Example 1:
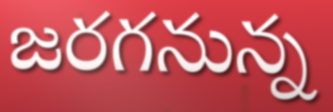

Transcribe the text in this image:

జరగనున్న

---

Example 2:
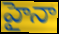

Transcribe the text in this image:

హైనా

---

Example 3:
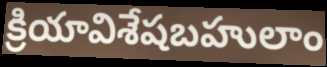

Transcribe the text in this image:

క్రియావిశేషబహులాం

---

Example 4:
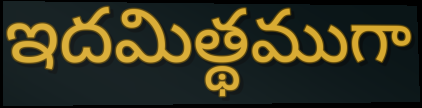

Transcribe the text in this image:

ఇదమిత్థముగా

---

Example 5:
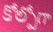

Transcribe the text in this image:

కోల్పోగా